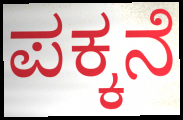
ಪಕ್ಕನೆ